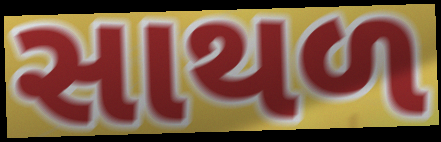
સાથળ